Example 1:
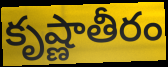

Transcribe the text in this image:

కృష్ణాతీరం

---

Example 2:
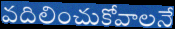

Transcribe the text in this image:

వదిలించుకోవాలనే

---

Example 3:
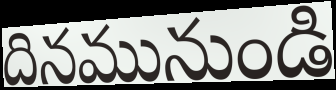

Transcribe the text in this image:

దినమునుండి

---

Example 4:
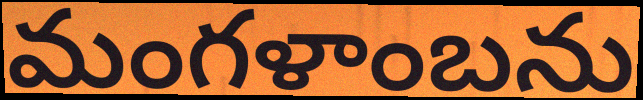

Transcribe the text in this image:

మంగళాంబను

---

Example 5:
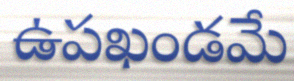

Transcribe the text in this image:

ఉపఖండమే